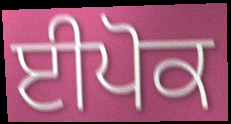
ਈਪੋਕ